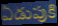
ఏడుపుకి